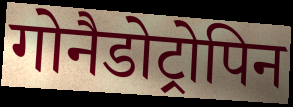
गोनैडोट्रोपिन